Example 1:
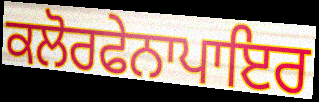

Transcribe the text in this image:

ਕਲੋਰਫੇਨਾਪਾਇਰ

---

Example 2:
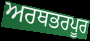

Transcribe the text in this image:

ਅਰਥਭਰਪੂਰ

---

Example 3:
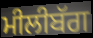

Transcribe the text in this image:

ਮੀਲੀਬੱਗ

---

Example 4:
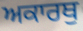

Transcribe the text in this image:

ਅਕਾਰਥੁ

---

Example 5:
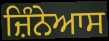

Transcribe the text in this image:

ਜ਼ਿੰਨੇਆਸ